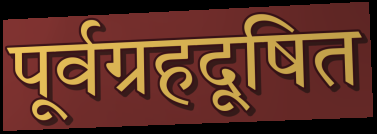
पूर्वग्रहदूषित